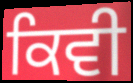
ਕਿਵੀ